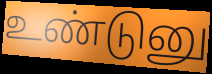
உண்டுனு